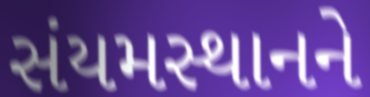
સંયમસ્થાનને